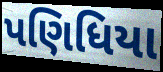
પણિધિયા